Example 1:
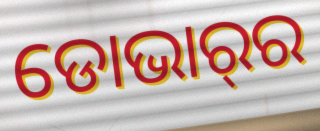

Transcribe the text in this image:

ଡୋଭାର୍‌ର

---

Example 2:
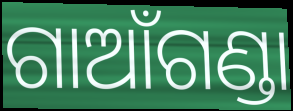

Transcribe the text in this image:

ଗାଆଁଗଣ୍ଡା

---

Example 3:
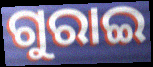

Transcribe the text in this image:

ଗୁରାଇ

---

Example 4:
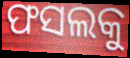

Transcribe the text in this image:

ଫସଲକୁ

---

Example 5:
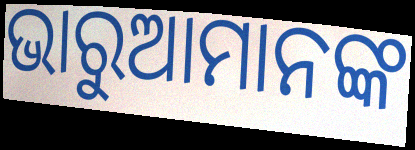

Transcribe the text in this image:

ଭାରୁଆମାନଙ୍କ